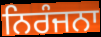
ਨਿਰੰਜਨਾ